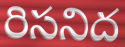
రిసనిద